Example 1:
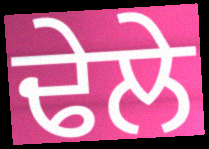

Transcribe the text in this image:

ਢੇਲੇ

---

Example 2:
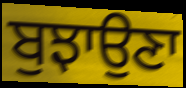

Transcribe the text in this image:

ਬੁਝਾਉਣਾ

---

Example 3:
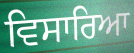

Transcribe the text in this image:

ਵਿਸਾਰਿਆ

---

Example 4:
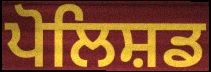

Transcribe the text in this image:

ਪੋਲਿਸ਼ਡ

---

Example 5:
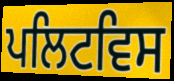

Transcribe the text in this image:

ਪਲਿਟਵਿਸ